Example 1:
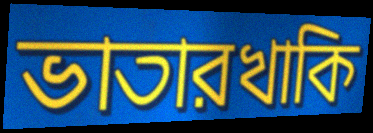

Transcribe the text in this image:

ভাতারখাকি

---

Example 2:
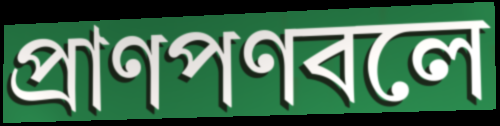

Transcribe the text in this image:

প্রাণপণবলে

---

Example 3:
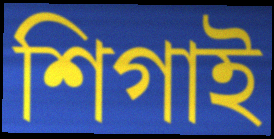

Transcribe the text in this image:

শিগাই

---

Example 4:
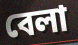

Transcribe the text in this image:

বেলা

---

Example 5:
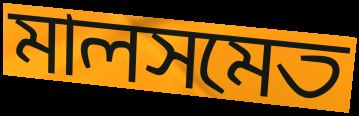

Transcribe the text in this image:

মালসমেত